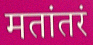
मतांतरं